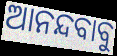
ଆନନ୍ଦବାବୁ